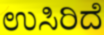
ಉಸಿರಿದೆ